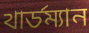
থার্ডম্যান